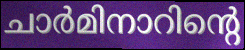
ചാർമിനാറിന്റെ